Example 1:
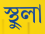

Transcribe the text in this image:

স্থুলা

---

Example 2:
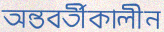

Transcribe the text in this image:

অন্তবর্তীকালীন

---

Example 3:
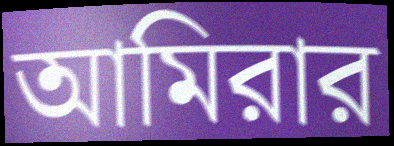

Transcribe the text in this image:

আমিরার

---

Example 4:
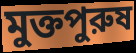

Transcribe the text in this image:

মুক্তপুরুষ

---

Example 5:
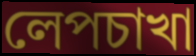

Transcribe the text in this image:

লেপচাখা